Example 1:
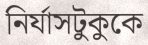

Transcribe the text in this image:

নির্যাসটুকুকে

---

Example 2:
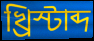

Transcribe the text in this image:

খ্রিস্টাব্দ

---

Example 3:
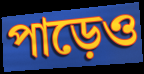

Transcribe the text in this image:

পাড়েও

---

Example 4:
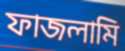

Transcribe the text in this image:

ফাজলামি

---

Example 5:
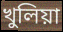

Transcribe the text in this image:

খুলিয়া